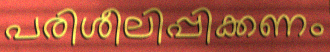
പരിശീലിപ്പിക്കണം